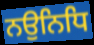
ਨਉਨਿਧਿ